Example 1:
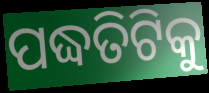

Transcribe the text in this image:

ପଦ୍ଧତିଟିକୁ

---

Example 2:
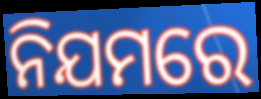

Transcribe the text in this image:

ନିଯମରେ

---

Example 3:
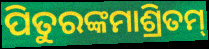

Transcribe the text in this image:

ପିତୁରଙ୍କମାଶ୍ରିତମ୍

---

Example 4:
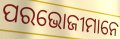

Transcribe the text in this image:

ପରଭୋଜୀମାନେ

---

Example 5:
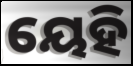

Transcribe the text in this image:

ୟେହି